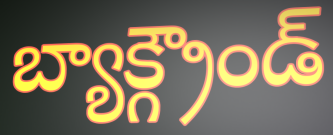
బ్యాక్గ్రౌండ్